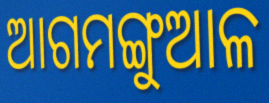
ଆଗମଙ୍ଗୁଆଳ